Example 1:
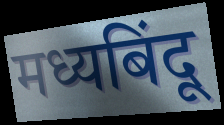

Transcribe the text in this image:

मध्यबिंदू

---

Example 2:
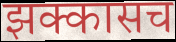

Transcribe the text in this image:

झक्कासच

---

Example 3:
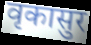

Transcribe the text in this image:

वृकासुर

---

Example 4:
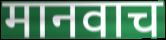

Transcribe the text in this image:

मानवाच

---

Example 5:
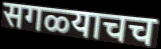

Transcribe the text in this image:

सगळ्याचच